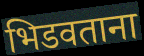
भिडवताना